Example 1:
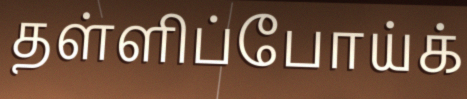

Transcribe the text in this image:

தள்ளிப்போய்க்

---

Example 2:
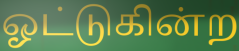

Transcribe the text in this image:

ஓட்டுகின்ற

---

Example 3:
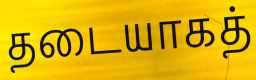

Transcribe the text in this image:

தடையாகத்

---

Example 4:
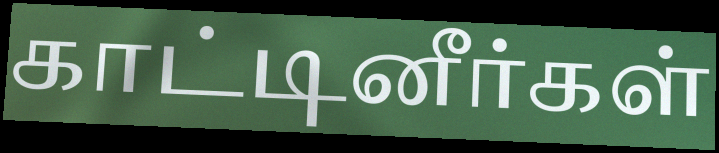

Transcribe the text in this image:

காட்டினீர்கள்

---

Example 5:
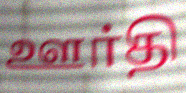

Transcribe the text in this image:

ஊர்தி